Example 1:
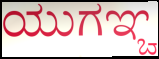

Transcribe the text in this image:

ಯುಗಞ್ಚ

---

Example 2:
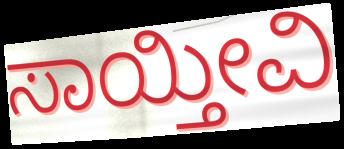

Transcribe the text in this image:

ಸಾಯ್ತೀವಿ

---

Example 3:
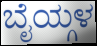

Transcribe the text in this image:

ಬೈಯ್ಗಳ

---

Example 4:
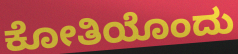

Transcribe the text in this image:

ಕೋತಿಯೊಂದು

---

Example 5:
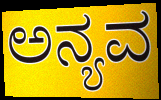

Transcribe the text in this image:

ಅನ್ಯವ